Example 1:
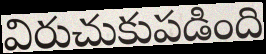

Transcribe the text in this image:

విరుచుకుపడింది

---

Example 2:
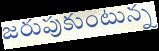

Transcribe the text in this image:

జరుపుకుంటున్న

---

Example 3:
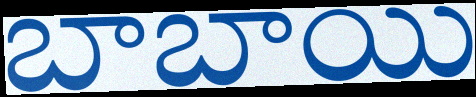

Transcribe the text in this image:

బాబాయి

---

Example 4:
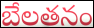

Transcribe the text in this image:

బేలతనం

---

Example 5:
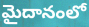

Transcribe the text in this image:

మైదానంలో